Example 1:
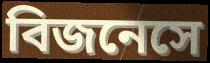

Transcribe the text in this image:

বিজনেসে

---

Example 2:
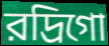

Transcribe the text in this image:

রদ্রিগো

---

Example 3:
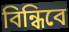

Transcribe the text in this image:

বিন্ধিবে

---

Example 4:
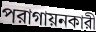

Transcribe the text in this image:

পরাগায়নকারী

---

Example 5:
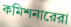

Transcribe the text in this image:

কমিশনারেরা